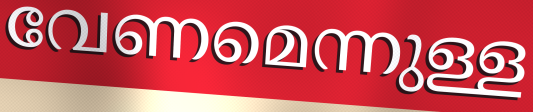
വേണമെന്നുള്ള